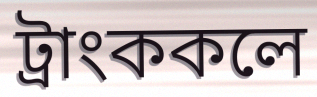
ট্রাংককলে